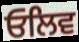
ਓਲਿਵ